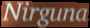
Nirguna